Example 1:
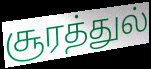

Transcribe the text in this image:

சூரத்துல்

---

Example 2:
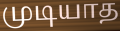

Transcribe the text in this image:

முடியாத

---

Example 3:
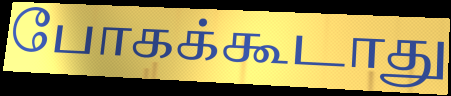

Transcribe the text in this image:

போகக்கூடாது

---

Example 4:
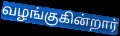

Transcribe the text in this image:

வழங்குகின்றார்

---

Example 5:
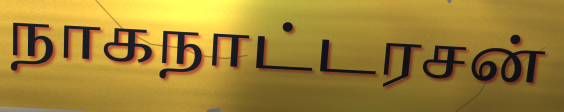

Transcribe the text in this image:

நாகநாட்டரசன்